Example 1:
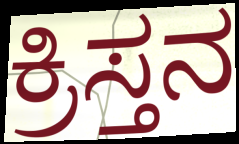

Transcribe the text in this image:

ಕ್ರಿಸ್ತನ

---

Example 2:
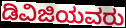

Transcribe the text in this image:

ಡಿವಿಜಿಯವರು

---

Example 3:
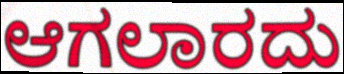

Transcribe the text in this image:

ಆಗಲಾರದು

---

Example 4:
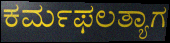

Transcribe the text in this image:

ಕರ್ಮಫಲತ್ಯಾಗ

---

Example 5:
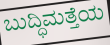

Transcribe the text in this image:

ಬುದ್ಧಿಮತ್ತೆಯ